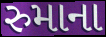
રુમાના